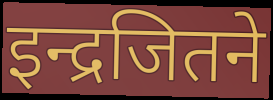
इन्द्रजितने